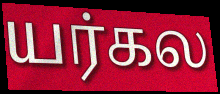
யர்கல